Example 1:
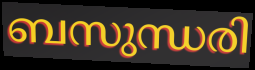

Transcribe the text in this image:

ബസുന്ധരി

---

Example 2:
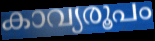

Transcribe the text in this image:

കാവ്യരൂപം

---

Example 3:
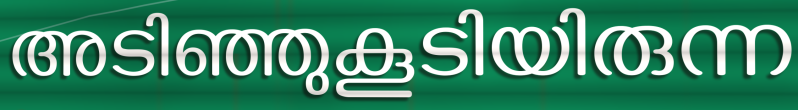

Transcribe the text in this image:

അടിഞ്ഞുകൂടിയിരുന്ന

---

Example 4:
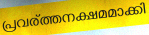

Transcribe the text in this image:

പ്രവര്ത്തനക്ഷമമാക്കി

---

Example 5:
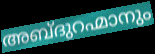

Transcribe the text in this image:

അബ്ദുറഹ്മാനും